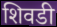
शिवडी